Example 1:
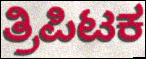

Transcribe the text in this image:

ತ್ರಿಪಿಟಕ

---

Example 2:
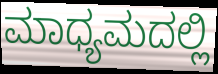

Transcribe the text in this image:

ಮಾಧ್ಯಮದಲ್ಲಿ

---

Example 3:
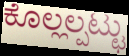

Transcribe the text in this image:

ಕೊಲ್ಲಲ್ಪಟ್ಟು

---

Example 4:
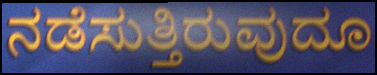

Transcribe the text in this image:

ನಡೆಸುತ್ತಿರುವುದೂ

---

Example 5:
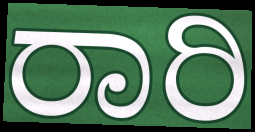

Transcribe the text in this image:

ರಾರಿ